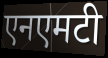
एनएमटी